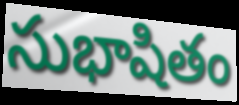
సుభాషితం